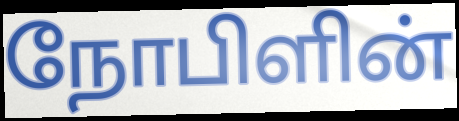
நோபிளின்